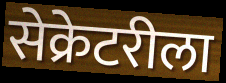
सेक्रेटरीला